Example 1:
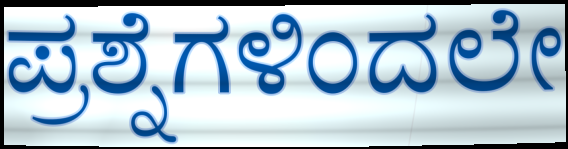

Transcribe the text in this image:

ಪ್ರಶ್ನೆಗಳಿಂದಲೇ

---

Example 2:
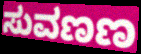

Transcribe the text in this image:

ಸುವಣಣ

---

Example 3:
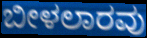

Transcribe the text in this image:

ಬೀಳಲಾರವು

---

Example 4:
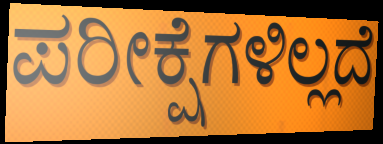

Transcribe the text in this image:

ಪರೀಕ್ಷೆಗಳಿಲ್ಲದೆ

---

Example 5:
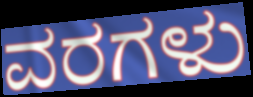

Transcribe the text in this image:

ವರಗಳು